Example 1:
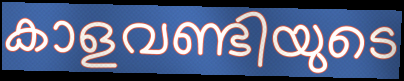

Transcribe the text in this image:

കാളവണ്ടിയുടെ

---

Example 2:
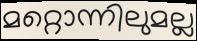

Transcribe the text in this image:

മറ്റൊന്നിലുമല്ല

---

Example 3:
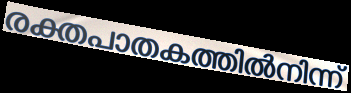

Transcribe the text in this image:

രക്തപാതകത്തിൽനിന്ന്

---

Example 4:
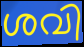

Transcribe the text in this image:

ശവി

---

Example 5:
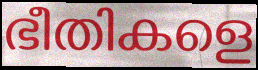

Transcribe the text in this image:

ഭീതികളെ